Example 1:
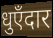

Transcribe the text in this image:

धुएँदार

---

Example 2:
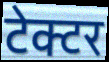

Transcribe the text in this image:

टेक्टर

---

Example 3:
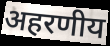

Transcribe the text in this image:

अहरणीय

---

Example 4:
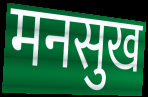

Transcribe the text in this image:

मनसुख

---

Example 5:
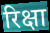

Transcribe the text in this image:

रिक्षा